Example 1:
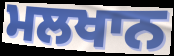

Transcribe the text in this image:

ਮਲਖਾਨ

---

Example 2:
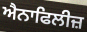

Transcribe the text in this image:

ਐਨਾਫਿਲੀਜ਼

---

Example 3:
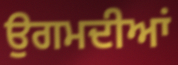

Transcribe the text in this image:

ਉਗਮਦੀਆਂ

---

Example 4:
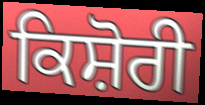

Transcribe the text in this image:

ਕਿਸ਼ੋਰੀ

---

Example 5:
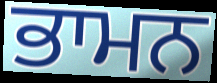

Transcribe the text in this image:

ਭਾਮਨ